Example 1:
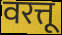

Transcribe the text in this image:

वरत्तू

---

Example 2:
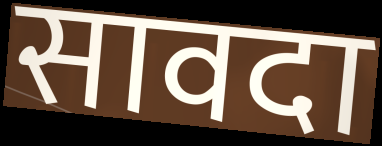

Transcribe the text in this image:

सावदा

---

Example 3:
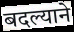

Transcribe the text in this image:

बदल्याने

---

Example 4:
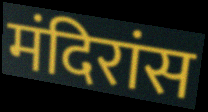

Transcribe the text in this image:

मंदिरांस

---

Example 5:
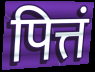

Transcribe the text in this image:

पित्तं